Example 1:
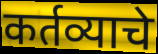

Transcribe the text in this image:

कर्तव्याचे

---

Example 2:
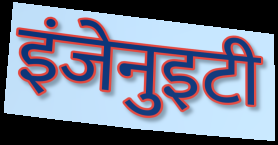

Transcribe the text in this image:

इंजेनुइटी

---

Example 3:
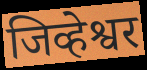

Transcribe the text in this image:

जिव्हेश्वर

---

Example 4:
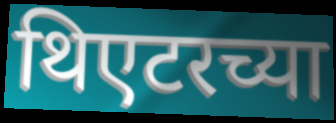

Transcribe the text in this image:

थिएटरच्या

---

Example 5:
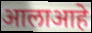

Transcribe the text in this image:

आलाआहे